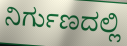
ನಿರ್ಗುಣದಲ್ಲಿ